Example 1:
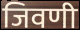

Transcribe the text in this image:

जिवणी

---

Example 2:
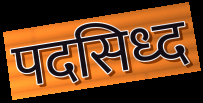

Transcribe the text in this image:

पदसिध्द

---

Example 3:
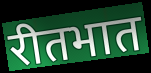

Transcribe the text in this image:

रीतभात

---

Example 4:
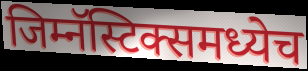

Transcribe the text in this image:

जिम्नॅस्टिक्समध्येच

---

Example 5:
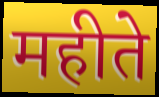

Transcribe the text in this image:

महीते